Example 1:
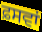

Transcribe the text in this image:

ਫ਼ਸਵਾਂ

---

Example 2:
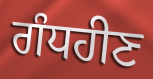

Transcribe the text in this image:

ਗੰਧਹੀਣ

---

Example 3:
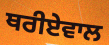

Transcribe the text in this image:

ਥਰੀਏਵਾਲ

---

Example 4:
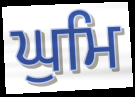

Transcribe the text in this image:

ਘੁਮਿ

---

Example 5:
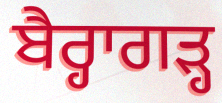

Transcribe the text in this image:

ਬੈਰ੍ਹਾਗੜ੍ਹ